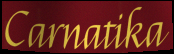
Carnatika